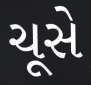
ચૂસે